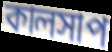
কালসাপ